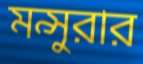
মন্সুরার